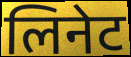
लिनेट